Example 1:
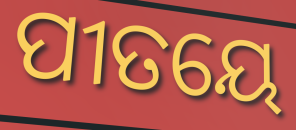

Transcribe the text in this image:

ପୀତୟେ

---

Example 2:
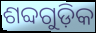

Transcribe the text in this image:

ଶବ୍ଦଗୁଡ଼ିକ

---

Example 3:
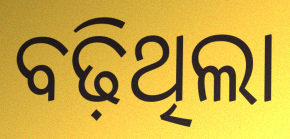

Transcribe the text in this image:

ବଢ଼ିଥିଲା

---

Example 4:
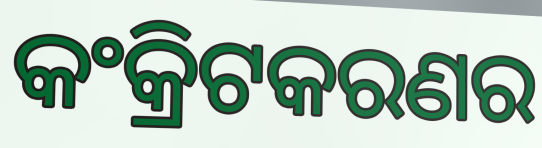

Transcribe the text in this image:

କଂକ୍ରିଟକରଣର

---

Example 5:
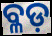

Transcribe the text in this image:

ବ୍ଳଡ଼